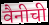
वैनीची